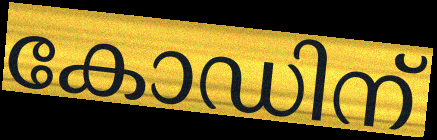
കോഡിന്